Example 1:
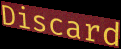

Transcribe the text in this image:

Discard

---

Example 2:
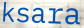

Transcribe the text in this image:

ksara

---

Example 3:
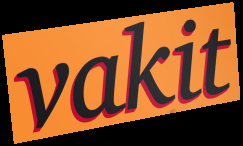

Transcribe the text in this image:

vakit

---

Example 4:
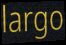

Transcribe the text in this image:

largo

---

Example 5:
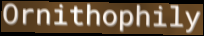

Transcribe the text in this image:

Ornithophily